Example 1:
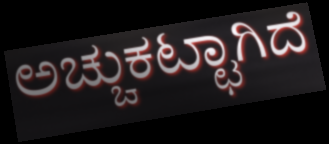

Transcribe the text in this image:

ಅಚ್ಚುಕಟ್ಟಾಗಿದೆ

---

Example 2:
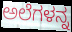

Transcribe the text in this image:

ಅಲೆಗಳನ್ನ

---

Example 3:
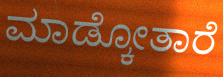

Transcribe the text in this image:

ಮಾಡ್ಕೋತಾರೆ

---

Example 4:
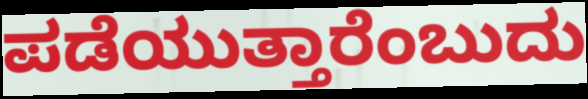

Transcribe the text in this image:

ಪಡೆಯುತ್ತಾರೆಂಬುದು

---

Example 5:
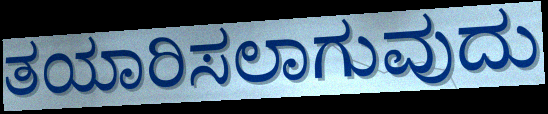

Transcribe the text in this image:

ತಯಾರಿಸಲಾಗುವುದು